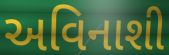
અવિનાશી